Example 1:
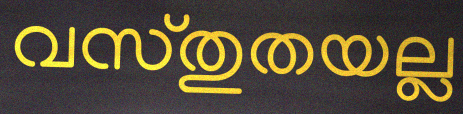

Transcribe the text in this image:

വസ്തുതയല്ല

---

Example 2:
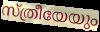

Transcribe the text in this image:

സ്ത്രീയേയും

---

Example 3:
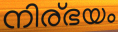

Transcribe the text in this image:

നിര്ഭയം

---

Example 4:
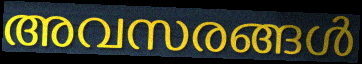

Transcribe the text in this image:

അവസരങ്ങൾ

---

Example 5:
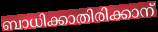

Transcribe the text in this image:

ബാധിക്കാതിരിക്കാന്